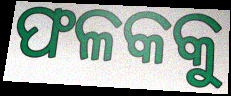
ଫଳକକୁ